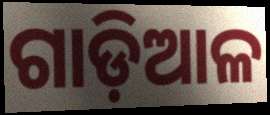
ଗାଡ଼ିଆଳ